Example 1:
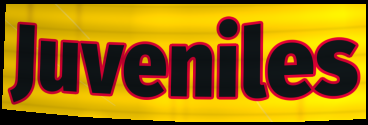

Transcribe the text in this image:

Juveniles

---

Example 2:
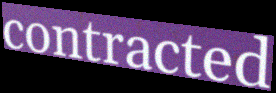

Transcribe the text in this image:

contracted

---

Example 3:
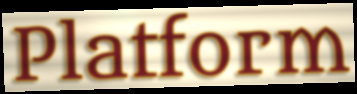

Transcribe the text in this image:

Platform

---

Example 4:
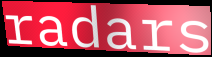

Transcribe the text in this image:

radars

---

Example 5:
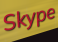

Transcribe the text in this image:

Skype